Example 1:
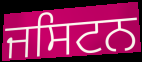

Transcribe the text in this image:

ਜਸਿਟਨ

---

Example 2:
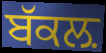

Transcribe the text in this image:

ਬੱਕਲ਼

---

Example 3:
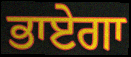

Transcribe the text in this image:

ਭਾਏਗਾ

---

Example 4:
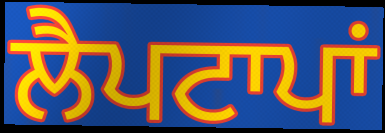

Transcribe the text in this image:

ਲੈਪਟਾਪਾਂ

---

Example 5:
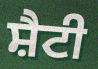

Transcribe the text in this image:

ਸ਼ੈਟੀ